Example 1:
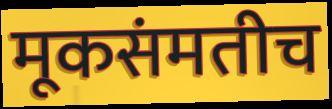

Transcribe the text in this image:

मूकसंमतीच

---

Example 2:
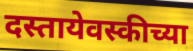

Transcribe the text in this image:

दस्तायेवस्कीच्या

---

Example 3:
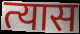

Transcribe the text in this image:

त्‍यास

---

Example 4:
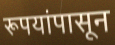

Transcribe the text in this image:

रूपयांपासून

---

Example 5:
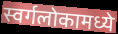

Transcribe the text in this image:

स्वर्गलोकामध्ये